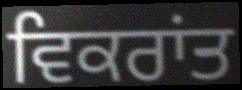
ਵਿਕਰਾਂਤ